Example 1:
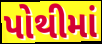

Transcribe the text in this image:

પોથીમાં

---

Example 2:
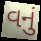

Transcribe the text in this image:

વનું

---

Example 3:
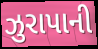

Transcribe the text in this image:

ઝુરાપાની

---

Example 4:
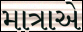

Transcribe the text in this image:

માત્રાએ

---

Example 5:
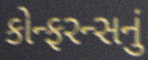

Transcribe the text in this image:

કોન્ફરન્સનું